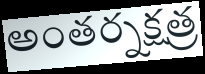
అంతర్నక్షత్ర